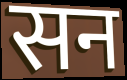
सन